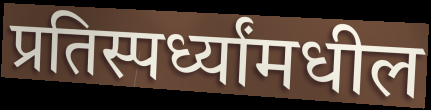
प्रतिस्पर्ध्यांमधील